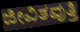
ಜೀವಿತವುತ್ತಿ